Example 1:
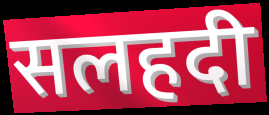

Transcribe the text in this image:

सलहदी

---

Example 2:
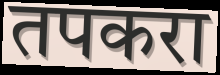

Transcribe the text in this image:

तपकरा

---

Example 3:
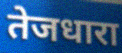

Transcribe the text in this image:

तेजधारा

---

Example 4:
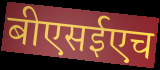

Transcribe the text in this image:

बीएसईएच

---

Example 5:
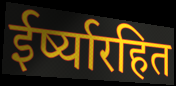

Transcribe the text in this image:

ईर्ष्यारहित